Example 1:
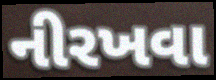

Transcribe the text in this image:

નીરખવા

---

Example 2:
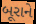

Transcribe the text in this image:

બૂરાને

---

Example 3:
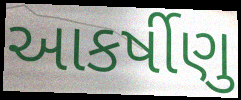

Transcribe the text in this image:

આકર્ષીણુ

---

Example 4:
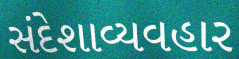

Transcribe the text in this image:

સંદેશાવ્યવહાર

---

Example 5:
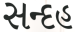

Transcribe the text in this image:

સન્દહ